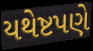
યથેષ્ટપણે